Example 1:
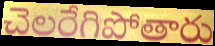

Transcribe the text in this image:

చెలరేగిపోతారు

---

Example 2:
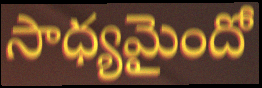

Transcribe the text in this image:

సాధ్యమైందో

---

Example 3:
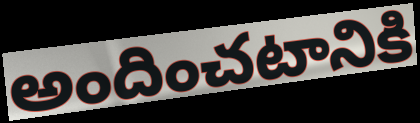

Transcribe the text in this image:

అందించటానికి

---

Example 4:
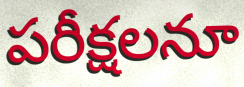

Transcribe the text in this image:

పరీక్షలనూ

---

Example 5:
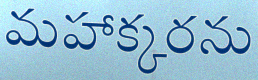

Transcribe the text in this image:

మహాక్కరను